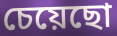
চেয়েছো